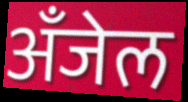
अँजेल